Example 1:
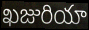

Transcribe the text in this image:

ఖజురియా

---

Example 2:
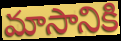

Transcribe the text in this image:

మాసానికి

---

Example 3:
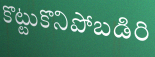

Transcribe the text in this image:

కొట్టుకొనిపోబడిరి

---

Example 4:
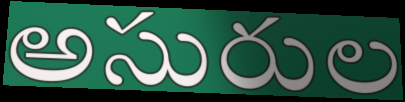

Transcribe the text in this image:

అసురుల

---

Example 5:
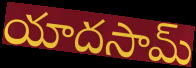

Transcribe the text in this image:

యాదసామ్